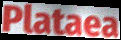
Plataea